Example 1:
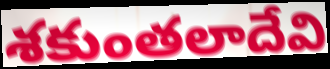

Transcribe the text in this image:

శకుంతలాదేవి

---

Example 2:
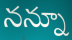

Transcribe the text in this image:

నన్నూ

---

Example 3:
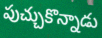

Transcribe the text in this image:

పుచ్చుకొన్నాడు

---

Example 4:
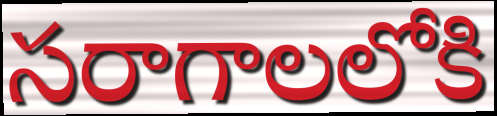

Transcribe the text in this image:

సరాగాలలోకి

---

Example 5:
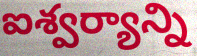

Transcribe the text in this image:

ఐశ్వర్యాన్ని